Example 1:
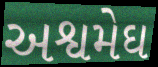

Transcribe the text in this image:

અશ્વમેઘ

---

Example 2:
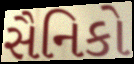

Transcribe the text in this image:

સૈનિકો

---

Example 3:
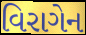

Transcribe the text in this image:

વિરાગેન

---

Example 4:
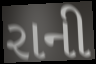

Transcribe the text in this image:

રાની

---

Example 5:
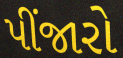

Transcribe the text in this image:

પીંજારો